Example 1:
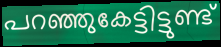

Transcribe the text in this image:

പറഞ്ഞുകേട്ടിട്ടുണ്ട്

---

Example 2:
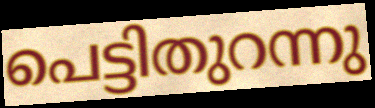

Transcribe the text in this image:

പെട്ടിതുറന്നു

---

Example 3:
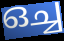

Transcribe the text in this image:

ഒച്ച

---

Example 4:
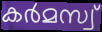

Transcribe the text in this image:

കർമസ്വ്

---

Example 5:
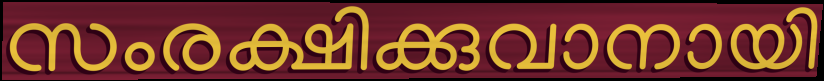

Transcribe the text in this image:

സംരക്ഷിക്കുവാനായി